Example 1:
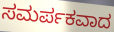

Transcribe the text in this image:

ಸಮರ್ಪಕವಾದ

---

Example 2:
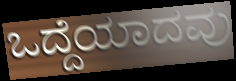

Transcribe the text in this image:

ಒದ್ದೆಯಾದವು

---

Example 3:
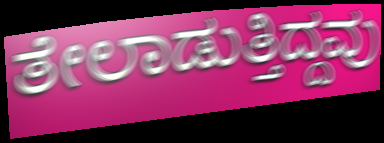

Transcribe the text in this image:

ತೇಲಾಡುತ್ತಿದ್ದವು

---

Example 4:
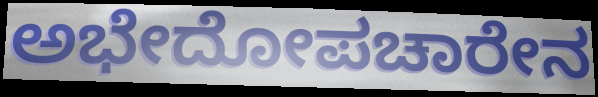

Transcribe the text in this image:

ಅಭೇದೋಪಚಾರೇನ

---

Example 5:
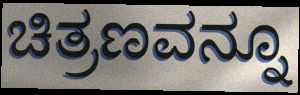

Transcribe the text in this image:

ಚಿತ್ರಣವನ್ನೂ